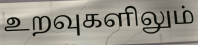
உறவுகளிலும்